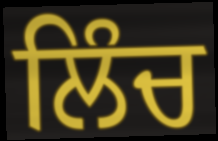
ਲਿੰਚ